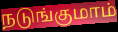
நடுங்குமாம்